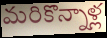
మరికొన్నాళ్ల